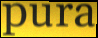
pura